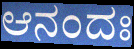
ಆನಂದಃ